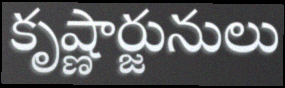
కృష్ణార్జునులు